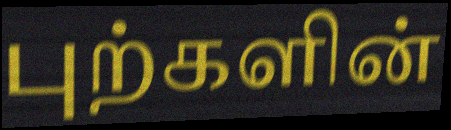
புற்களின்